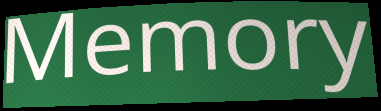
Memory